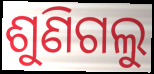
ଶୁଣିଗଲୁ